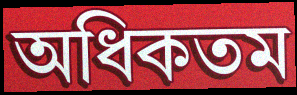
অধিকতম